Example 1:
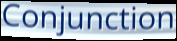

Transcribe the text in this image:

Conjunction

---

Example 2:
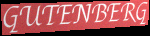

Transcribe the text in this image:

GUTENBERG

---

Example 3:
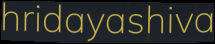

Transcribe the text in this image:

hridayashiva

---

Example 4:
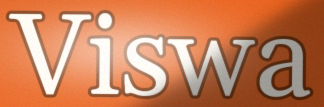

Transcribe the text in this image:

Viswa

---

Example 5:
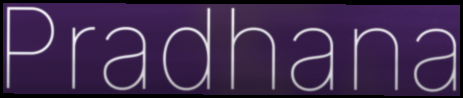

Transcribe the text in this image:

Pradhana